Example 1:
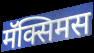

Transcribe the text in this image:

मॅक्सिमस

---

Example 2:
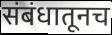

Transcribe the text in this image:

संबंधातूनच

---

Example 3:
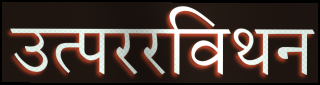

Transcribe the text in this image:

उत्पररविथन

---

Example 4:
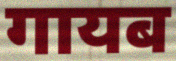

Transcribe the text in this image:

गायब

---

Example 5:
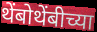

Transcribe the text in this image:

थेंबोथेंबीच्या